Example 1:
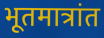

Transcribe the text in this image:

भूतमात्रांत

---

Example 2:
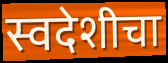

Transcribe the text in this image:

स्वदेशीचा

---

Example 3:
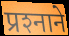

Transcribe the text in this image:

प्रश्नाने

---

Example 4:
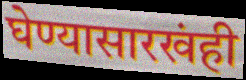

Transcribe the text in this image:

घेण्यासारखंही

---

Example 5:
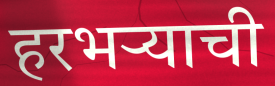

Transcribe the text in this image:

हरभऱ्याची